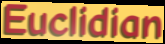
Euclidian